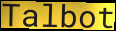
Talbot